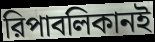
রিপাবলিকানই